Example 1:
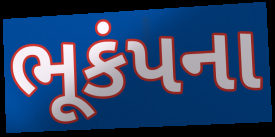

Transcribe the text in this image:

ભૂકંપના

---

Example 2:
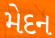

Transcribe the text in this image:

મેદન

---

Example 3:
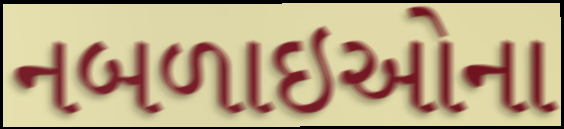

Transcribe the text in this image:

નબળાઇઓના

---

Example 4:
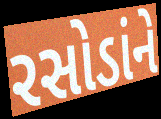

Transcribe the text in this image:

રસોડાંને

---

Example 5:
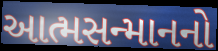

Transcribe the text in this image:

આત્મસન્માનનો